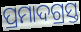
ପ୍ରମାଦଗ୍ରସ୍ତ